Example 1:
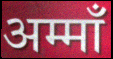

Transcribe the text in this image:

अम्माँ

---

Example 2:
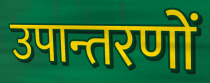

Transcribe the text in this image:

उपान्तरणों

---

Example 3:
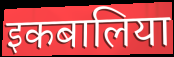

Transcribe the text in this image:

इकबालिया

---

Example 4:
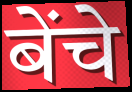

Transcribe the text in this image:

बेंचे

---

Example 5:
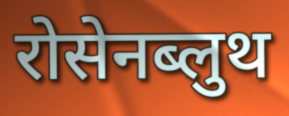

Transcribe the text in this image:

रोसेनब्लुथ